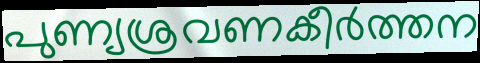
പുണ്യശ്രവണകീർത്തന